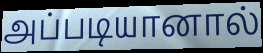
அப்படியானால்